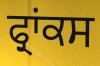
ਫ੍ਰਾਂਕਸ